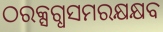
ଠରକ୍ସଗ୍ଧସମରକ୍ଷକ୍ଷବ